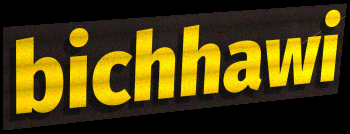
bichhawi